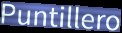
Puntillero